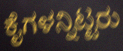
ಕೈಗಳನ್ನಿಟ್ಟರು